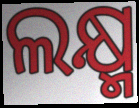
ଲକ୍ଷ୍ମ